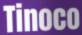
Tinoco